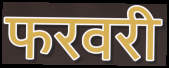
फरवरी